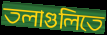
তলাগুলিতে